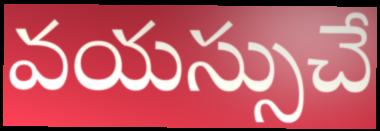
వయస్సుచే